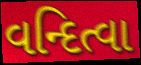
વન્દિત્વા